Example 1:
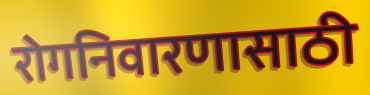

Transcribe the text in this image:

रोगनिवारणासाठी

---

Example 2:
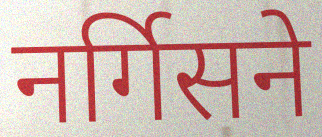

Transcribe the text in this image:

नर्गिसने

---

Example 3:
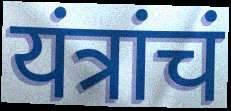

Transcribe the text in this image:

यंत्रांचं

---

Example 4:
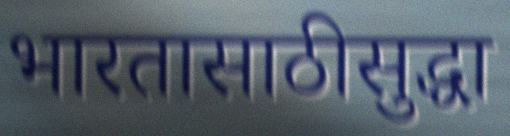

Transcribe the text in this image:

भारतासाठीसुद्धा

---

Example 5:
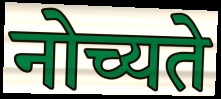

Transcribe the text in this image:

नोच्यते